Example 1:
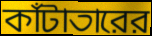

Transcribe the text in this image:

কাঁটাতারের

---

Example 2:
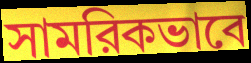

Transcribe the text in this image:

সামরিকভাবে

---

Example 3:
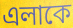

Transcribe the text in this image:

এলাকে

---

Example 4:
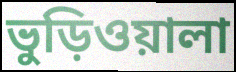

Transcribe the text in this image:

ভুড়িওয়ালা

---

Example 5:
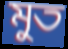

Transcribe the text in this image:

মুত